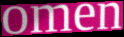
omen